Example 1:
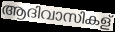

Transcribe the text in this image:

ആദിവാസികള്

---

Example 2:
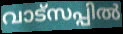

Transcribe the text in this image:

വാട്സപ്പിൽ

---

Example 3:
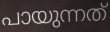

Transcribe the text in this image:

പായുന്നത്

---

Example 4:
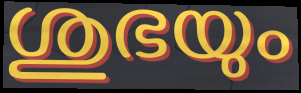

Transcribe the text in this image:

ശുഭയും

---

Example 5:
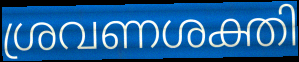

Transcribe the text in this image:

ശ്രവണശക്തി